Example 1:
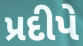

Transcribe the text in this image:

પ્રદીપે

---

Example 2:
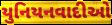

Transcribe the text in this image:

યુનિયનવાદીઓ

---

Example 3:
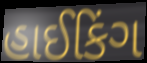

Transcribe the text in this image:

હાઈકિંગ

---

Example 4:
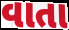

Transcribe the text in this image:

વાતા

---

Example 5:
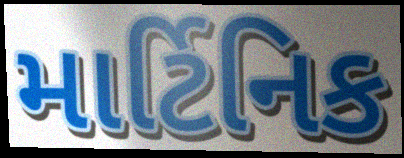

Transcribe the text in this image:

માર્ટિનિક